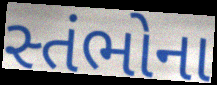
સ્તંભોના